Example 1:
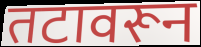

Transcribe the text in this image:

तटावरून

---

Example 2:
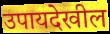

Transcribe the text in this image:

उपायदेखील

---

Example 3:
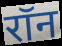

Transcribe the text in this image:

रॉन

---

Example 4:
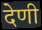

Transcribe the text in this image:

देणी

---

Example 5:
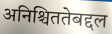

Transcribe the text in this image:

अनिश्चिततेबद्दल